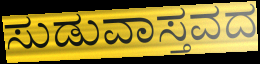
ಸುಡುವಾಸ್ತವದ